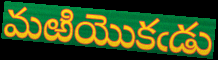
మఱియొకఁడు